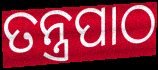
ତନ୍ତ୍ରପାଠ